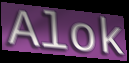
Alok